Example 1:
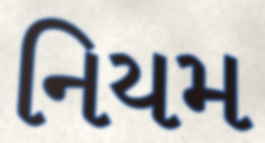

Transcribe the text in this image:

નિયમ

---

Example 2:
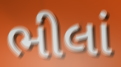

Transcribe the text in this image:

ભીલાં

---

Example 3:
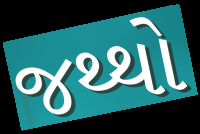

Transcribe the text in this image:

જથ્થો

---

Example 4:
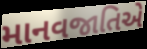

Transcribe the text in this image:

માનવજાતિએ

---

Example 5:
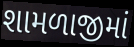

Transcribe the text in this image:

શામળાજીમાં